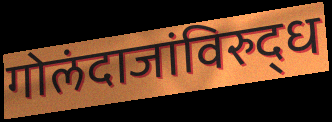
गोलंदाजांविरुद्ध